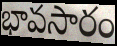
భావసారం